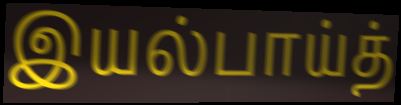
இயல்பாய்த்